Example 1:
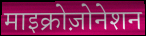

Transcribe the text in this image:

माइक्रोज़ोनेशन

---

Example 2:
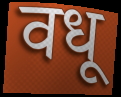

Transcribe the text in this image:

वधू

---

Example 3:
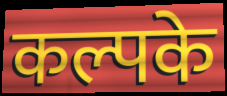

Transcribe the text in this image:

कल्पके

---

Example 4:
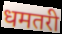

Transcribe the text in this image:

धमतरी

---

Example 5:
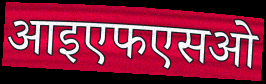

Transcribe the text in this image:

आइएफएसओ